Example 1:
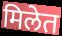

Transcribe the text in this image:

मिलेत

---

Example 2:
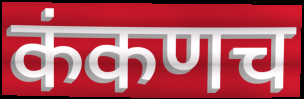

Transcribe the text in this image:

कंकणच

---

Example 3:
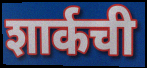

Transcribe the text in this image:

शार्कची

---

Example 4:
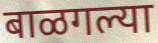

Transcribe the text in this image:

बाळगल्या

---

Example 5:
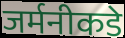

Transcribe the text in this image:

जर्मनीकडे